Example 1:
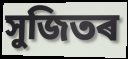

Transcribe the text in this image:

সুজিতৰ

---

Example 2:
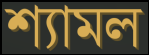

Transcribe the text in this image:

শ্যামল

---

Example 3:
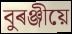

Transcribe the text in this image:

বুৰঞ্জীয়ে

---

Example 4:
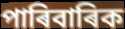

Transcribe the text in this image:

পাৰিবাৰিক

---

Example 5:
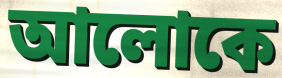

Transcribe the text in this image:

আলোকে